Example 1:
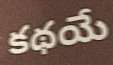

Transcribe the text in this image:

కథయే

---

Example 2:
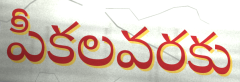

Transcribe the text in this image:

పీకలవరకు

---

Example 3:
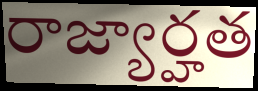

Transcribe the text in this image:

రాజ్యార్హత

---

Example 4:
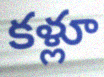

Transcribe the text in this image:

కళ్లూ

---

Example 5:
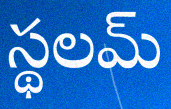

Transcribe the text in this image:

స్థలమ్